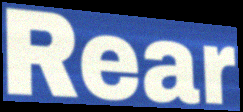
Rear